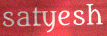
satyesh